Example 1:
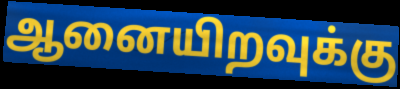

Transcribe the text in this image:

ஆனையிறவுக்கு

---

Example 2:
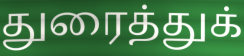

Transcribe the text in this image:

துரைத்துக்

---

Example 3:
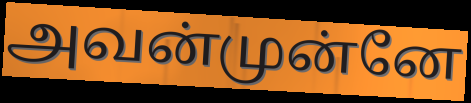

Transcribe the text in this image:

அவன்முன்னே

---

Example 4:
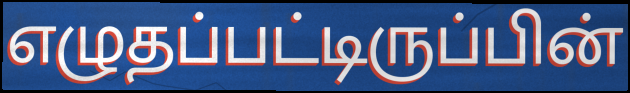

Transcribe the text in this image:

எழுதப்பட்டிருப்பின்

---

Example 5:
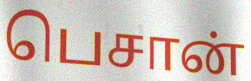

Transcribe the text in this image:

பெசான்